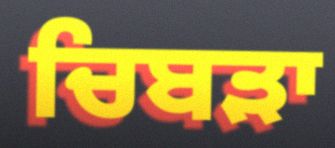
ਚਿਬੜਾ